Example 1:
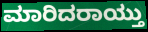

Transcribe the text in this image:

ಮಾರಿದರಾಯ್ತು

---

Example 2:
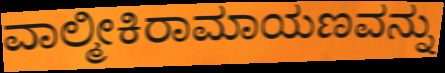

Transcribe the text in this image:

ವಾಲ್ಮೀಕಿರಾಮಾಯಣವನ್ನು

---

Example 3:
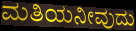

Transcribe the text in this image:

ಮತಿಯನೀವುದು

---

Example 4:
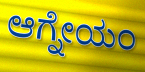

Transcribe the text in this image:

ಆಗ್ನೇಯಂ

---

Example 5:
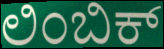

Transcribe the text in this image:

ಲಿಂಬಿಕ್